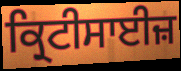
ਕ੍ਰਿਟੀਸਾਈਜ਼